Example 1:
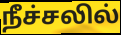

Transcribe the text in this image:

நீச்சலில்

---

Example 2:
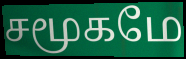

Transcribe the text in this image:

சமூகமே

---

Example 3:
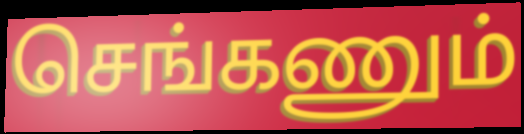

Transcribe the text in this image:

செங்கணும்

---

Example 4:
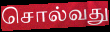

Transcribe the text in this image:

சொல்வது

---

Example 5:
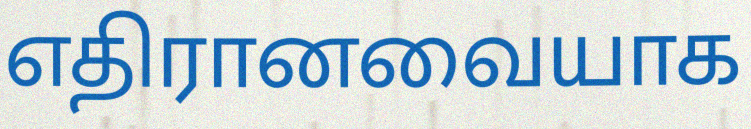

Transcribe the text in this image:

எதிரானவையாக